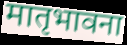
मातृभावना